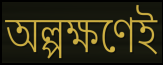
অল্পক্ষণেই